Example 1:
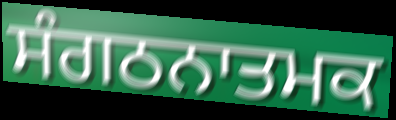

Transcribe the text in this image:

ਸੰਗਠਨਾਤਮਕ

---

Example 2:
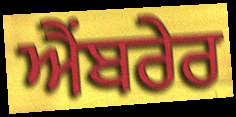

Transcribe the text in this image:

ਐਂਬਰੇਰ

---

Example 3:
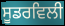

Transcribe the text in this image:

ਸੂਡਰਵਿਲੀ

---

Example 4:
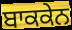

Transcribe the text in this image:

ਬਾਕਕੇਨ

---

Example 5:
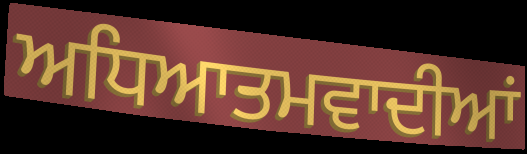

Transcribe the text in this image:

ਅਧਿਆਤਮਵਾਦੀਆਂ